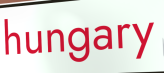
hungary